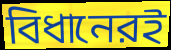
বিধানেরই